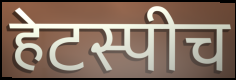
हेटस्पीच